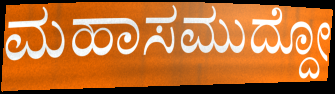
ಮಹಾಸಮುದ್ದೋ